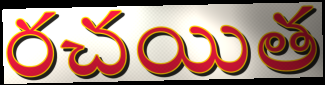
రచయిత